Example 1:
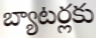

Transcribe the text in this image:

బ్యాటర్లకు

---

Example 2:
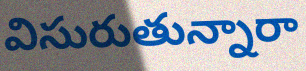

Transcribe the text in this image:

విసురుతున్నారా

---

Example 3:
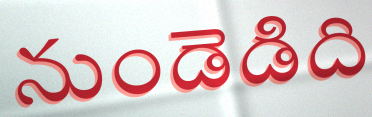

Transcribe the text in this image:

నుండెడిది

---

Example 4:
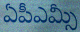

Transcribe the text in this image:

ఏపీఎమ్సీ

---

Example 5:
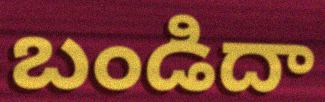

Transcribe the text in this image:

బండిదా